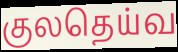
குலதெய்வ